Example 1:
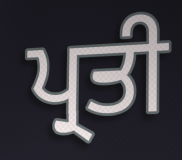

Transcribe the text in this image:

ਪ੍ਰਤੀ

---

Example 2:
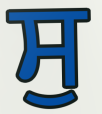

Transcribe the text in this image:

ਸੁ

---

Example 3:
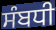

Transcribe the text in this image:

ਸੰਬਧੀ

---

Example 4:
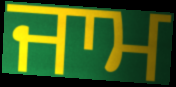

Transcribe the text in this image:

ਜਾਮ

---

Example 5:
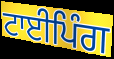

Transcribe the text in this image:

ਟਾਈਪਿੰਗ